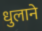
धुलाने